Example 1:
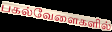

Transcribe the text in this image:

பகல்வேளைகளில்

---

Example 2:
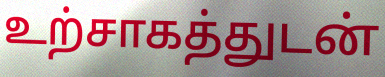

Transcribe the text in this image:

உற்சாகத்துடன்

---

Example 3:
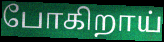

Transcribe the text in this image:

போகிறாய்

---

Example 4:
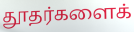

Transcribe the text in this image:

தூதர்களைக்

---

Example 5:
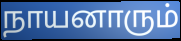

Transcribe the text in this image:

நாயனாரும்